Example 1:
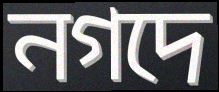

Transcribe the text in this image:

নগদে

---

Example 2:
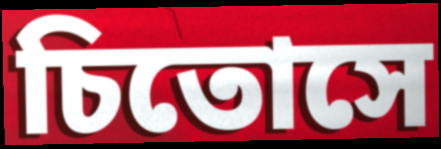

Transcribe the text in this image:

চিতোসে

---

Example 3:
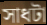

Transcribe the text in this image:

সাধটা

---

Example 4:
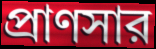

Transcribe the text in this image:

প্রাণসার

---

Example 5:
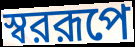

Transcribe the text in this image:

স্বররূপে